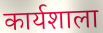
कार्यशाला